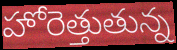
హోరెత్తుతున్న